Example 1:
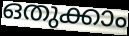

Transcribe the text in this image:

ഒതുക്കാം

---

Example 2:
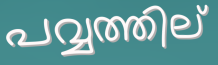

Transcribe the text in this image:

പവ്വത്തില്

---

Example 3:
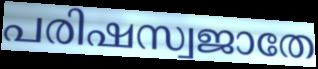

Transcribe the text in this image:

പരിഷസ്വജാതേ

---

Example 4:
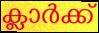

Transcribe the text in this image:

ക്ലാർക്ക്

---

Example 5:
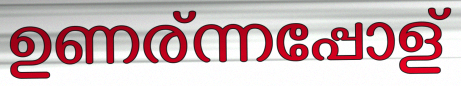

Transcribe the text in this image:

ഉണര്ന്നപ്പോള്